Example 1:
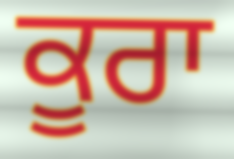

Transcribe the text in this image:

ਕੂਰਾ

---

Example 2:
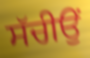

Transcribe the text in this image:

ਸੱਚੀਉਂ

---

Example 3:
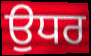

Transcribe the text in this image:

ਉਧਰ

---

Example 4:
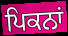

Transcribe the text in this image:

ਪਿਕਨਾਂ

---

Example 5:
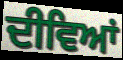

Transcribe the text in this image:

ਦੀਵਿਆਂ